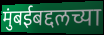
मुंबईबद्दलच्या